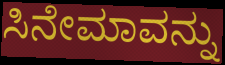
ಸಿನೇಮಾವನ್ನು